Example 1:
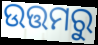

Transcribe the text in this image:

ଉତ୍ତମରୁ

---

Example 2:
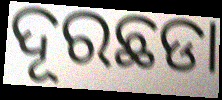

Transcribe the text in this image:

ଦୂରଛଡା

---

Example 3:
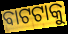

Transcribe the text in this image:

ବାଟଟାକୁ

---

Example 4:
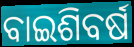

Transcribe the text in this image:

ବାଇଶିବର୍ଷ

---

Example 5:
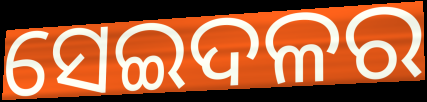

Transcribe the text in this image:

ସେଇଦଳର